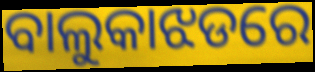
ବାଲୁକାଝଡରେ